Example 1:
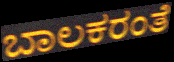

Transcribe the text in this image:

ಬಾಲಕರಂತೆ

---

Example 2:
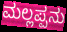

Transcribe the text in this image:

ಮಲ್ಲಪ್ಪನು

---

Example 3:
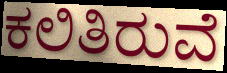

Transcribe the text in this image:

ಕಲಿತಿರುವೆ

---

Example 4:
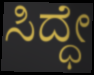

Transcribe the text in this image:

ಸಿದ್ಧೇ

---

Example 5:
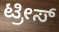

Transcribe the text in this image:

ಟ್ರೀಸ್